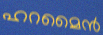
ഹറമൈൻ